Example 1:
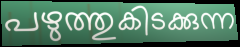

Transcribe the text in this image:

പഴുത്തുകിടക്കുന്ന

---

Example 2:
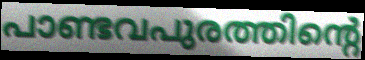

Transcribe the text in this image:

പാണ്ടവപുരത്തിന്റെ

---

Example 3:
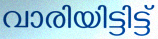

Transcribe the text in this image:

വാരിയിട്ടിട്ട്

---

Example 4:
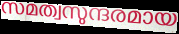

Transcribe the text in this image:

സമത്വസുന്ദരമായ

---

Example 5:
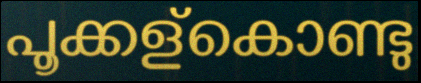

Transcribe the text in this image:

പൂക്കള്കൊണ്ടു